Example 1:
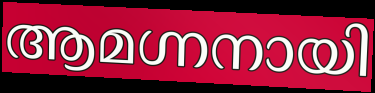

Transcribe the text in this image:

ആമഗ്നനായി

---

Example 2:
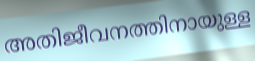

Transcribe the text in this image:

അതിജീവനത്തിനായുള്ള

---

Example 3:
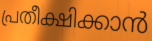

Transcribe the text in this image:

പ്രതീക്ഷിക്കാൻ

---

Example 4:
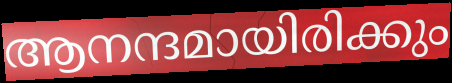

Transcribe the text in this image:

ആനന്ദമായിരിക്കും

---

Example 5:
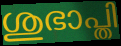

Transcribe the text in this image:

ശുഭാപ്തി